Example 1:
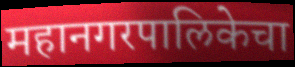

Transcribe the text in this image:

महानगरपालिकेचा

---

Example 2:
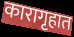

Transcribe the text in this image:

कारागृहात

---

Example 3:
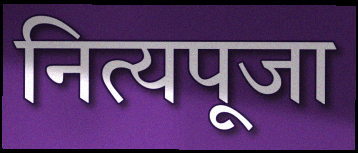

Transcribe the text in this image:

नित्यपूजा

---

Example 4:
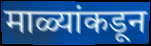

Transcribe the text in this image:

माळ्यांकडून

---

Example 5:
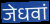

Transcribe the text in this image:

जेधवां